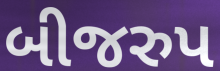
બીજરુપ